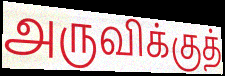
அருவிக்குத்